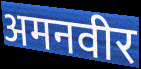
अमनवीर